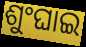
ଶୁଂଘାଇ